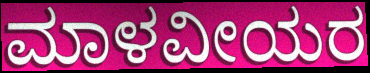
ಮಾಳವೀಯರ